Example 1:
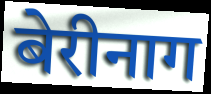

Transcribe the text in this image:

बेरीनाग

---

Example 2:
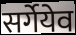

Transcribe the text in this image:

सर्गेयेव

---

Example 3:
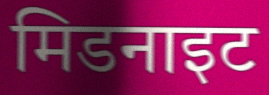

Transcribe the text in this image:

मिडनाइट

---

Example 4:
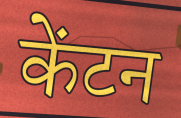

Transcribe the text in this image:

केंटन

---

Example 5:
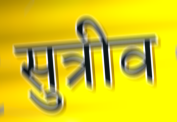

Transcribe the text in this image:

सुत्रीव